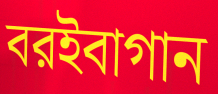
বরইবাগান